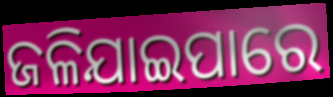
ଜଳିଯାଇପାରେ